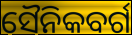
ସୈନିକବର୍ଗ